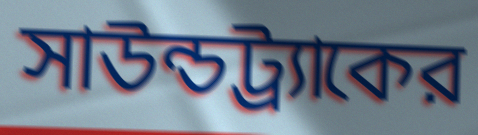
সাউন্ডট্র্যাকের